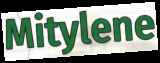
Mitylene